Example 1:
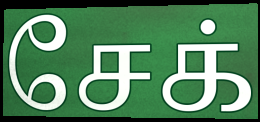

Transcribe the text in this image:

சேக்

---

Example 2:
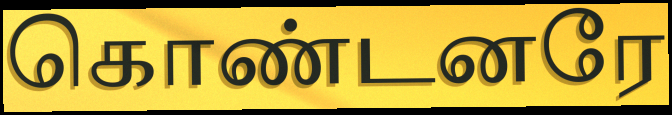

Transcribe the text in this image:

கொண்டனரே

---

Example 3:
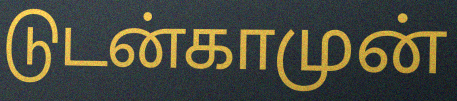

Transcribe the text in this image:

டுடன்காமுன்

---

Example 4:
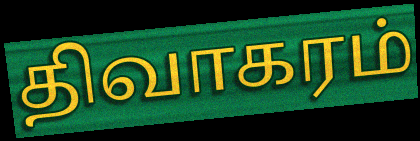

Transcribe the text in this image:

திவாகரம்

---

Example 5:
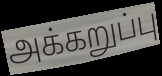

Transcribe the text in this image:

அக்கறுப்பு